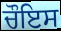
ਚੌਇਸ